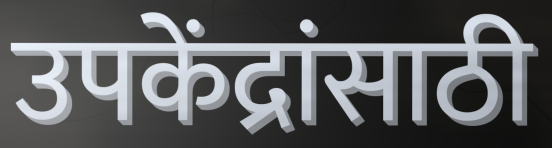
उपकेंद्रांसाठी